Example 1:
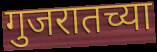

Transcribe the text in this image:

गुजरातच्या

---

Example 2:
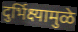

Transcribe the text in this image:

दुर्भिक्ष्यामुळे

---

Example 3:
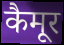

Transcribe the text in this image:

कैमूर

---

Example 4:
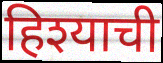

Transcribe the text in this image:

हिश्याची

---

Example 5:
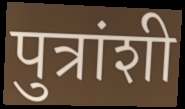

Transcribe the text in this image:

पुत्रांशी